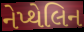
નેપ્થેલિન